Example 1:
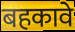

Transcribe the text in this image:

बहकावे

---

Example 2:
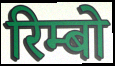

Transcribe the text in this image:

रिम्बो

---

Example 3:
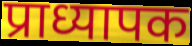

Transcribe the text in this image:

प्राध्यापक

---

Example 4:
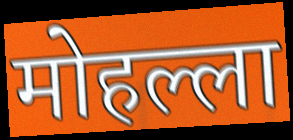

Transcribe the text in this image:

मोहल्‍ला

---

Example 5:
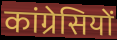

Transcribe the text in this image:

कांग्रेसियों